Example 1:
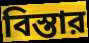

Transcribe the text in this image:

বিস্তার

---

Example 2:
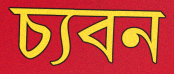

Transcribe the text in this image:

চ্যবন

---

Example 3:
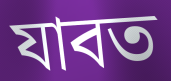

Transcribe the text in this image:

যাবত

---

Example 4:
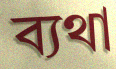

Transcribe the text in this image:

ব্যথা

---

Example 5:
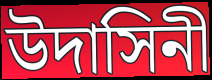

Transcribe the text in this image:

উদাসিনী